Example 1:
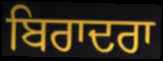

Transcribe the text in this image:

ਬਿਰਾਦਰਾ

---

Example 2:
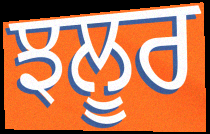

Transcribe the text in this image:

ਝਲੂਰ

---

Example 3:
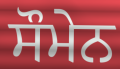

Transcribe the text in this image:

ਸੌਮੇਨ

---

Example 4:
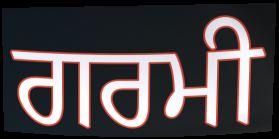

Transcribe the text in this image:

ਗਰਮੀ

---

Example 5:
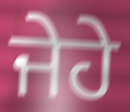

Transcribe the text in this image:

ਜੇਹੇ